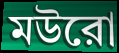
মউরো